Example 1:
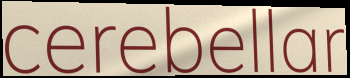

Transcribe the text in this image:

cerebellar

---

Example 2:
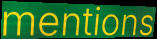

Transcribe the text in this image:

mentions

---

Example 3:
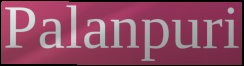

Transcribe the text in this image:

Palanpuri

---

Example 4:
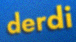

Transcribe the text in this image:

derdi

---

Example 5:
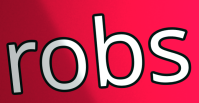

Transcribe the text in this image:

robs